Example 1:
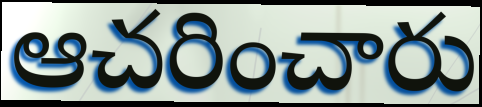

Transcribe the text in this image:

ఆచరించారు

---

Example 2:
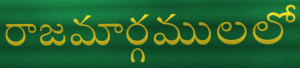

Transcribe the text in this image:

రాజమార్గములలో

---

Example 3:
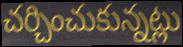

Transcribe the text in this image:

చర్చించుకున్నట్లు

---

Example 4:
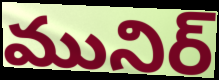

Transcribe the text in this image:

మునిర్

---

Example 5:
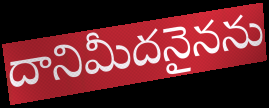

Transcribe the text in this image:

దానిమీదనైనను